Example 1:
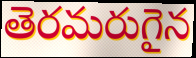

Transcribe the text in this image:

తెరమరుగైన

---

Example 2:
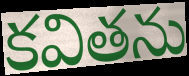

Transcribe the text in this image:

కవితను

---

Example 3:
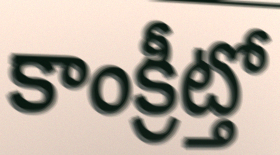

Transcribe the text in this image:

కాంక్రీట్తో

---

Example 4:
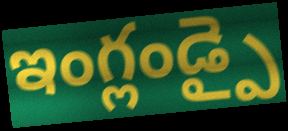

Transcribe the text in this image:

ఇంగ్లండ్పై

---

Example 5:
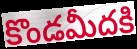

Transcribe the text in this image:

కొండమీదకి